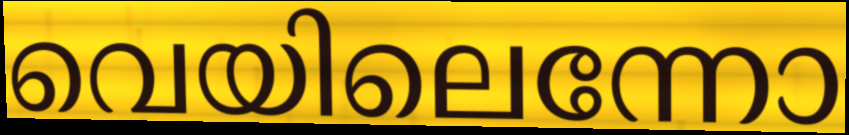
വെയിലെന്നോ